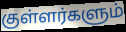
குள்ளர்களும்